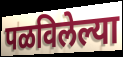
पळविलेल्या